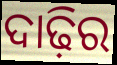
ଦାଢ଼ିର